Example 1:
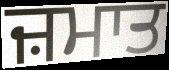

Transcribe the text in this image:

ਜ਼ਮਾਤ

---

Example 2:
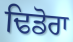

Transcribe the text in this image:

ਢਿਡੋਰਾ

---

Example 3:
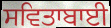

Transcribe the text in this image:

ਸਵਿਤਾਬਾਈ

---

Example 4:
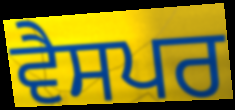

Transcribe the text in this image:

ਵੈਸਪਰ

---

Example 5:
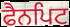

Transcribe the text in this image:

ਫੈਨਪਿਟ